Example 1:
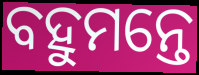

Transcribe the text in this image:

ବହୁମନ୍ତେ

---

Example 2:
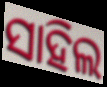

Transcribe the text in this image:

ସାହିଲ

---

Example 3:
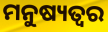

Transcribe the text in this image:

ମନୁଷ୍ୟତ୍ବର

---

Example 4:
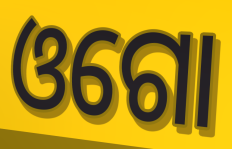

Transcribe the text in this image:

ଓଗୋ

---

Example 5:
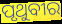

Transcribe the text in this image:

ପୃଥୁବୀର